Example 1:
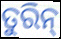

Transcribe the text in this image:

ତୁରିନ୍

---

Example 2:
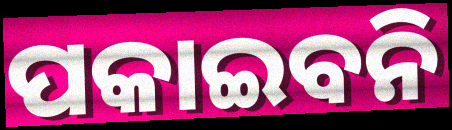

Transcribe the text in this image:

ପକାଇବନି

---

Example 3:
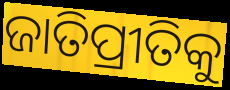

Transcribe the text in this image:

ଜାତିପ୍ରୀତିକୁ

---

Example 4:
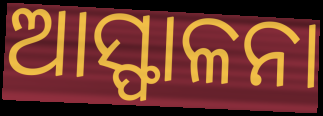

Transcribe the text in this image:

ଆସ୍ଫାଳନା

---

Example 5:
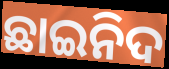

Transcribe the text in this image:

ଛାଇନିଦ